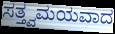
ಸತ್ತ್ವಮಯವಾದ